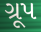
ગ્રૂપ